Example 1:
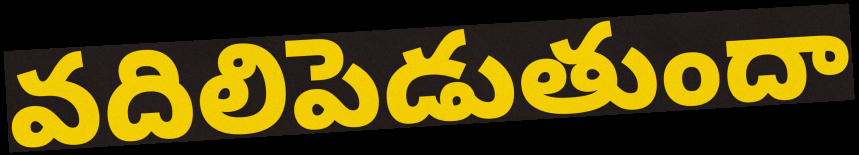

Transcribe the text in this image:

వదిలిపెడుతుందా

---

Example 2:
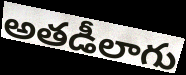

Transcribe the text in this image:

అతడీలాగు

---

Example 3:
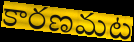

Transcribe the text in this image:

కారణమట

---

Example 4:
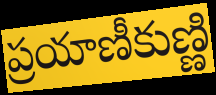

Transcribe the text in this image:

ప్రయాణీకుణ్ణి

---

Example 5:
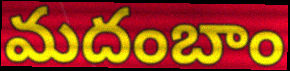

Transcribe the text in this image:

మదంబాం